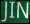
JIN